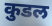
कुडल